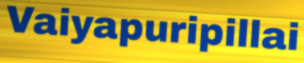
Vaiyapuripillai